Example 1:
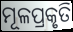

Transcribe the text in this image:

ମୂଳପ୍ରକୃତି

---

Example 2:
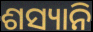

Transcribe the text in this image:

ଶସ୍ୟାନି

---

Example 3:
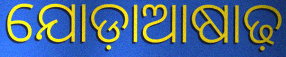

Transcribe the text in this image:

ଯୋଡ଼ାଆଷାଢ଼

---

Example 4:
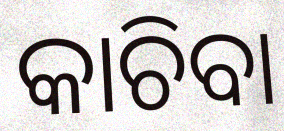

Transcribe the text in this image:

କାଚିବା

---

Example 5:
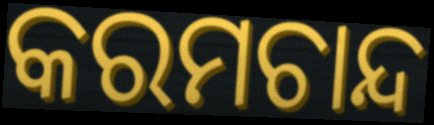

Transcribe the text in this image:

କରମଚାନ୍ଦ